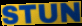
STUN